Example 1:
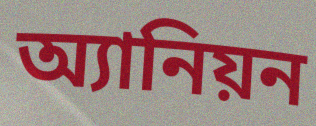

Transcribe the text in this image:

অ্যানিয়ন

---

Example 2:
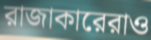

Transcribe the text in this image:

রাজাকারেরাও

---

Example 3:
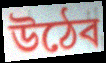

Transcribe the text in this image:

উঠেব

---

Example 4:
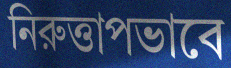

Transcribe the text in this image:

নিরুত্তাপভাবে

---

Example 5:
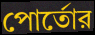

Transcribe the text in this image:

পোর্তোর